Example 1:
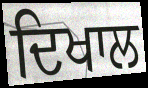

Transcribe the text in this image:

ਦਿਖਾਲ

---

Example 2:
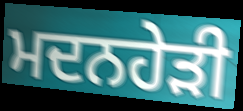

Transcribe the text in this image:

ਮਦਨਹੇੜੀ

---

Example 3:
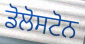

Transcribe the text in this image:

ਡੋਲੋਸਟੋਨ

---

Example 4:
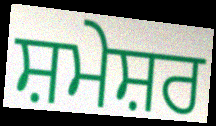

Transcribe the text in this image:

ਸ਼ਮੇਸ਼ਰ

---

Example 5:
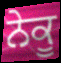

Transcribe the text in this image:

ਨੇਕੂ